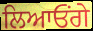
ਲਿਆਓਂਗੇ